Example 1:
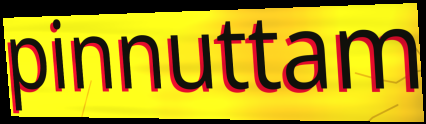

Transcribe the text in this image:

pinnuttam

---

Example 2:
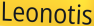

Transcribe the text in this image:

Leonotis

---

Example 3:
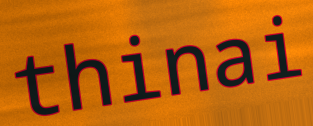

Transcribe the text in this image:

thinai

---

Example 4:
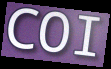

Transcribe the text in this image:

COI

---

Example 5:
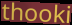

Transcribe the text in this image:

thooki